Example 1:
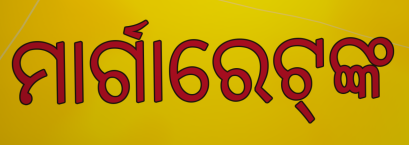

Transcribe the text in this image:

ମାର୍ଗାରେଟ୍‍ଙ୍କ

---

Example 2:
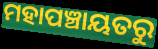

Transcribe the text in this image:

ମହାପଞ୍ଚାୟତରୁ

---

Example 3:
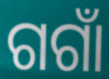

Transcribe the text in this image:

ଗଗାଁ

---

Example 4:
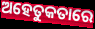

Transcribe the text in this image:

ଅହେତୁକତାରେ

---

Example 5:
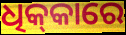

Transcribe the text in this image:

ଧିକ୍‌କାରେ